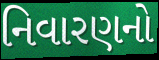
નિવારણનો